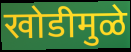
खोडीमुळे